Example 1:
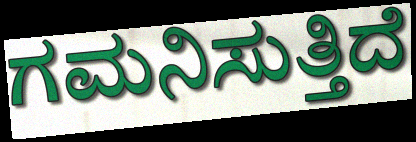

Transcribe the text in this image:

ಗಮನಿಸುತ್ತಿದೆ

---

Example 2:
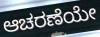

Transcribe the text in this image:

ಆಚರಣೆಯೇ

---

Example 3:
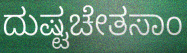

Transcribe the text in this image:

ದುಷ್ಟಚೇತಸಾಂ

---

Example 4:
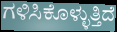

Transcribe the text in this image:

ಗಳಿಸಿಕೊಳ್ಳುತ್ತಿದೆ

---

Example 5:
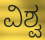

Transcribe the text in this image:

ವಿಶ್ವ